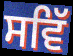
ਸਵਿੱ